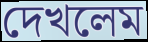
দেখলেম